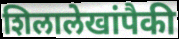
शिलालेखांपैकी